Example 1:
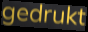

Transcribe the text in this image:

gedrukt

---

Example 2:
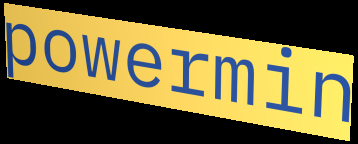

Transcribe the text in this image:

powermin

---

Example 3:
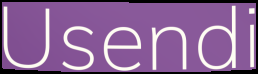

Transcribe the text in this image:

Usendi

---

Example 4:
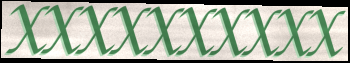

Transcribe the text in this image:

xxxxxxxxxx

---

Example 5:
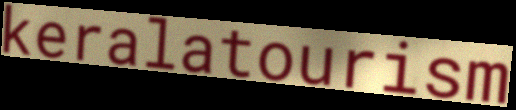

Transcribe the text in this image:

keralatourism